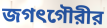
জগৎগৌরীর